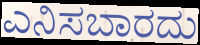
ಎನಿಸಬಾರದು